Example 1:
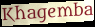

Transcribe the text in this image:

Khagemba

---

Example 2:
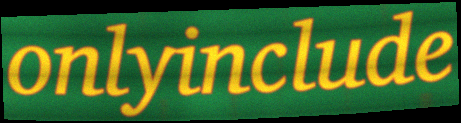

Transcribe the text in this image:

onlyinclude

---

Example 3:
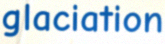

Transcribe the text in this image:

glaciation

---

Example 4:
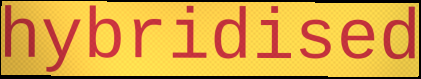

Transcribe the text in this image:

hybridised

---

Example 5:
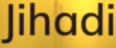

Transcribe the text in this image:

Jihadi